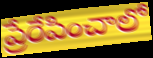
ప్రేరేపించాలో